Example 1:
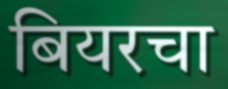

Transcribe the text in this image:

बियरचा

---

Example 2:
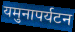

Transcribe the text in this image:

यमुनापर्यटन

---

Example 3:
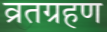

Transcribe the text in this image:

व्रतग्रहण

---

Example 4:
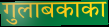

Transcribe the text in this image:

गुलाबकाका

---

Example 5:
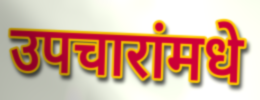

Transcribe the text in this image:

उपचारांमधे